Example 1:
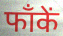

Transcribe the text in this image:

फाँकें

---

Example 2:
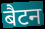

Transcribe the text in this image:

बैटन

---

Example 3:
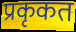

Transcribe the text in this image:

प्रकृकत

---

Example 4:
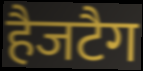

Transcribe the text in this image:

हैजटैग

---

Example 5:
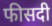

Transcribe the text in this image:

फीसदी